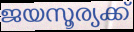
ജയസൂര്യക്ക്